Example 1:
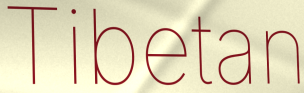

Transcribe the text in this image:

Tibetan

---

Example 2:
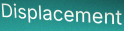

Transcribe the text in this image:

Displacement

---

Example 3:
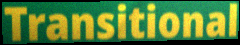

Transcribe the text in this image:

Transitional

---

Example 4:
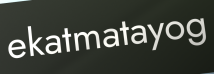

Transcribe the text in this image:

ekatmatayog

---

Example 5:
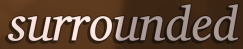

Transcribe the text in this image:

surrounded